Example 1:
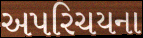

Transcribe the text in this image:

અપરિચયના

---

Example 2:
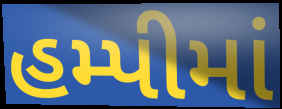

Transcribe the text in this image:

હમ્પીમાં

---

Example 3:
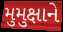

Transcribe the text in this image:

મુમુક્ષાને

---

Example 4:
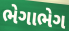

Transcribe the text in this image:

ભેગાભેગ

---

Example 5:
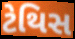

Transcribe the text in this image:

ટેથિસ